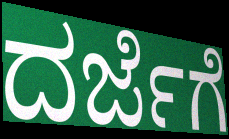
ದರ್ಜೆಗೆ